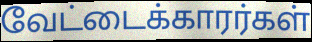
வேட்டைக்காரர்கள்